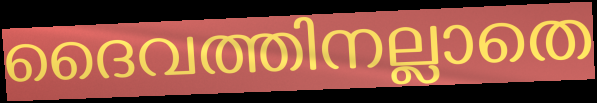
ദൈവത്തിനല്ലാതെ